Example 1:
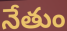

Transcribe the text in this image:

నేతుం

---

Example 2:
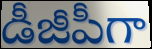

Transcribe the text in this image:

డీజీపీగా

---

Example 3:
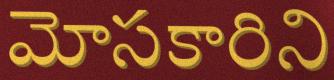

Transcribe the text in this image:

మోసకారిని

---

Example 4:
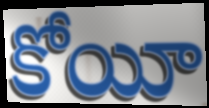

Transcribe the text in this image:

కోయీ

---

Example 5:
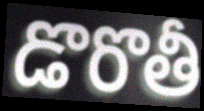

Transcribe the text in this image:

డొరొతీ